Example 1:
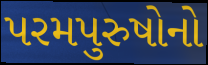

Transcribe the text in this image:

પરમપુરુષોનો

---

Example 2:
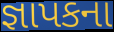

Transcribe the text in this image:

જ્ઞાપકના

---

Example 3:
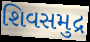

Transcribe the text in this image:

શિવસમુદ્ર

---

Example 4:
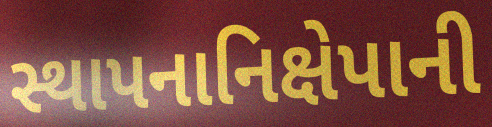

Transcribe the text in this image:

સ્થાપનાનિક્ષેપાની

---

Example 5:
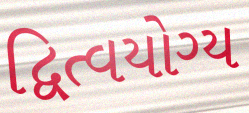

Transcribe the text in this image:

દ્વિત્વયોગ્ય